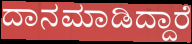
ದಾನಮಾಡಿದ್ದಾರೆ